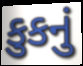
કુકનું